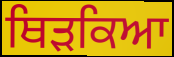
ਥਿੜਕਿਆ